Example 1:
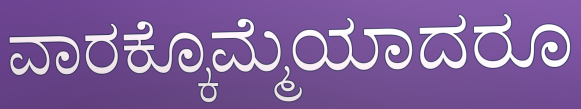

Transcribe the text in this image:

ವಾರಕ್ಕೊಮ್ಮೆಯಾದರೂ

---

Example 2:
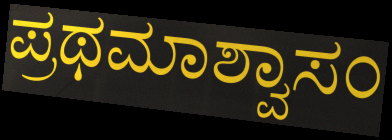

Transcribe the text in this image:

ಪ್ರಥಮಾಶ್ವಾಸಂ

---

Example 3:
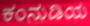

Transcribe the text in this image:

ಕಂನುಡಿಯ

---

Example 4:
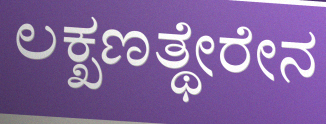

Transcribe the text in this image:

ಲಕ್ಖಣತ್ಥೇರೇನ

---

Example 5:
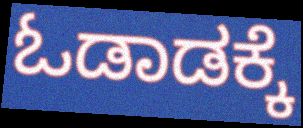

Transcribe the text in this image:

ಓಡಾಡಕ್ಕೆ